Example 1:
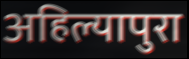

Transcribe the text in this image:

अहिल्यापुरा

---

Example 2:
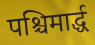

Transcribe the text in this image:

पश्चिमार्द्ध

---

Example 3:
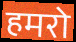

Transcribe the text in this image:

हमरो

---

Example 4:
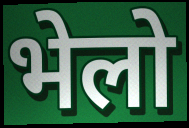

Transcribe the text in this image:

भेलो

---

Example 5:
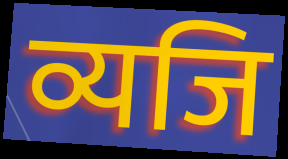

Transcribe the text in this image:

व्यजि